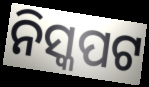
ନିସ୍କପଟ